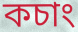
কচাং